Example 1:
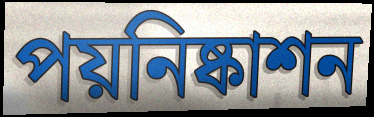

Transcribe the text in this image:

পয়নিষ্কাশন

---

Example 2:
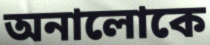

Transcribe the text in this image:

অনালোকে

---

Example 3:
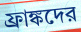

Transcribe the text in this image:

ফ্রাঙ্কদের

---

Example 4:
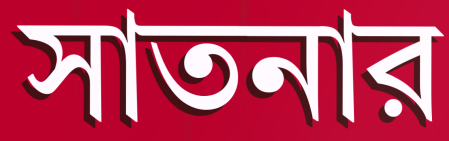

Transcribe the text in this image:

সাতনার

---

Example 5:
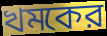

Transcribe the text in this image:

খমকের